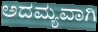
ಅದಮ್ಯವಾಗಿ